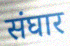
संघार